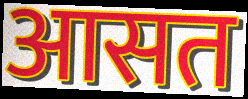
आसत